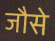
जौसे